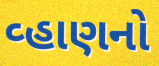
વ્હાણનો